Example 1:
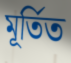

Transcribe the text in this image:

মূৰ্তিত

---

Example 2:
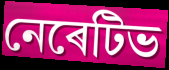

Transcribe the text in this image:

নেৰেটিভ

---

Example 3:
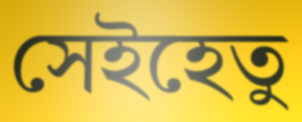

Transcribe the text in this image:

সেইহেতু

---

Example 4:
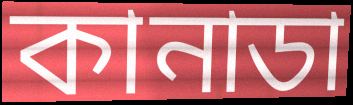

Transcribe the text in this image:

কানাডা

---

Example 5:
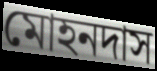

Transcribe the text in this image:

মোহনদাস